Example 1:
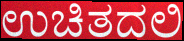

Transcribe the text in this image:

ಉಚಿತದಲಿ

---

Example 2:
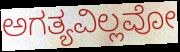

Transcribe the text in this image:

ಅಗತ್ಯವಿಲ್ಲವೋ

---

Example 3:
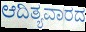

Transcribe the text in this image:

ಆದಿತ್ಯವಾರದ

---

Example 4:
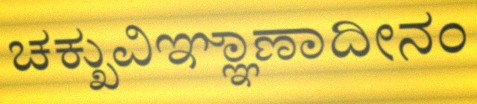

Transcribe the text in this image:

ಚಕ್ಖುವಿಞ್ಞಾಣಾದೀನಂ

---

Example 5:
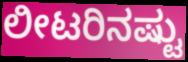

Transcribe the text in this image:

ಲೀಟರಿನಷ್ಟು